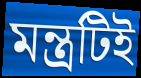
মন্ত্রটিই